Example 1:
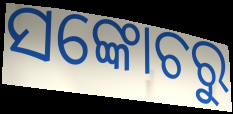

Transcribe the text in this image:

ସଙ୍କୋଚରୁ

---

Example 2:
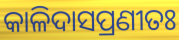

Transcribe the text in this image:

କାଳିଦାସପ୍ରଣୀତଃ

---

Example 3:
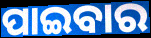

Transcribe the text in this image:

ପାଇବାର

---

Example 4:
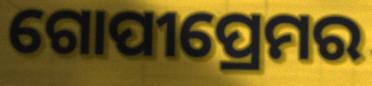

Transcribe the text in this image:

ଗୋପୀପ୍ରେମର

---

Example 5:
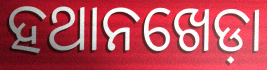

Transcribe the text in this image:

ହଥାନଖେଡ଼ା